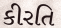
કીરતિ